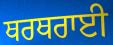
ਥਰਥਰਾਈ